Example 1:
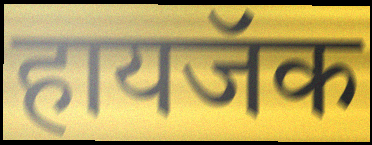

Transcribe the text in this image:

हायजॅक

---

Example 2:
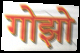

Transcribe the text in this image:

गोझो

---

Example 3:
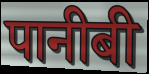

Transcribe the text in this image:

पानीबी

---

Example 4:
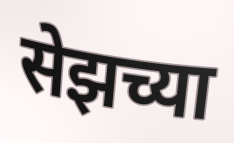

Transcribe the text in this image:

सेझच्या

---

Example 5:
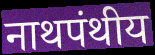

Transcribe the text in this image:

नाथपंथीय